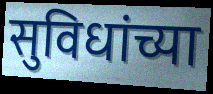
सुविधांच्या